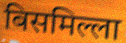
बिसमिल्ला